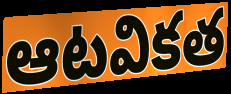
ఆటవికత